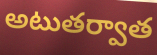
అటుతర్వాత